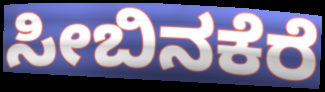
ಸೀಬಿನಕೆರೆ